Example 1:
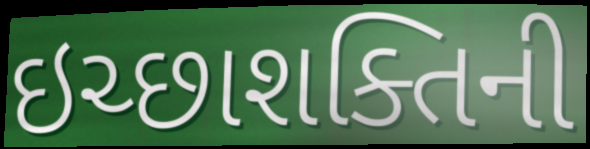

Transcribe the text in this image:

ઇચ્છાશક્તિની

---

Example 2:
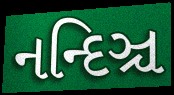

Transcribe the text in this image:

નન્દિઞ્ચ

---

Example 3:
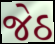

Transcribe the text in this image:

જેઠ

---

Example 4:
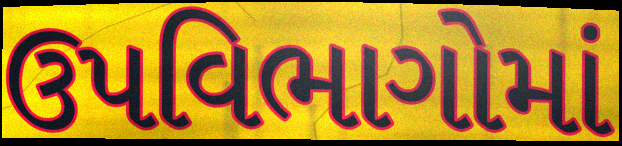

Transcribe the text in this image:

ઉપવિભાગોમાં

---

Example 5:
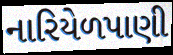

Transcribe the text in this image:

નારિયેળપાણી